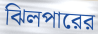
ঝিলপারের